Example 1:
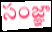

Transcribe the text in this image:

సంజ్ఞా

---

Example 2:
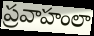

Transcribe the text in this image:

ప్రవాహంలా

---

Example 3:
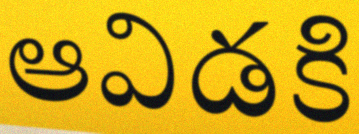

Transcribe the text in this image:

ఆవిడకి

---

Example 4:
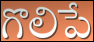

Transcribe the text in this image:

గొలిపే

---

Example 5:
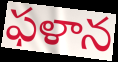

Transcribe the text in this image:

ఫళాన